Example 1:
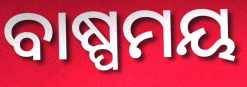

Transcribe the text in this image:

ବାଷ୍ପମୟ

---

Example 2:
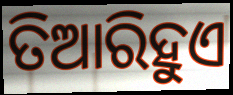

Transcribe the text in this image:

ତିଆରିହୁଏ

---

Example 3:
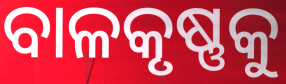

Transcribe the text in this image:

ବାଳକୃଷ୍ଣକୁ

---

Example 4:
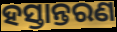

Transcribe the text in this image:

ହସ୍ତାନ୍ତରଣ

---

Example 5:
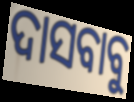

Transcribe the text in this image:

ଦାସବାବୁ